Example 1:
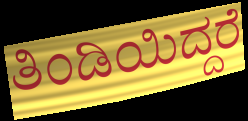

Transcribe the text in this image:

ತಿಂಡಿಯಿದ್ದರೆ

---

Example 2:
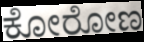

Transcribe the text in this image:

ಕೋರೋಣ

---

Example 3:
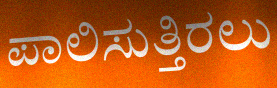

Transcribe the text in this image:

ಪಾಲಿಸುತ್ತಿರಲು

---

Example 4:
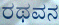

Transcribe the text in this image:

ರಥವನ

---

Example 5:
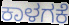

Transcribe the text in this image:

ಕಾಳಗಕೆ